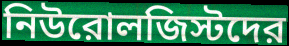
নিউরোলজিস্টদের